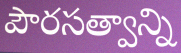
పౌరసత్వాన్ని